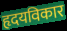
हृदयविकार